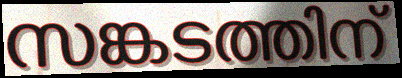
സങ്കടത്തിന്